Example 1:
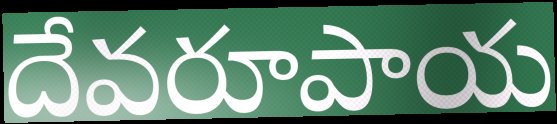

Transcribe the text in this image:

దేవరూపాయ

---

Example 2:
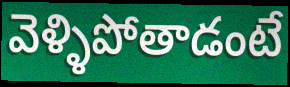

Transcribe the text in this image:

వెళ్ళిపోతాడంటే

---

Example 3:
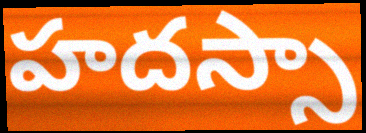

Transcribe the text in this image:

హదస్సా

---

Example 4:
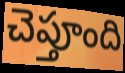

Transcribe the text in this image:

చెప్తూంది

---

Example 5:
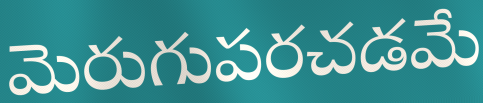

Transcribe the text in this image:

మెరుగుపరచడమే